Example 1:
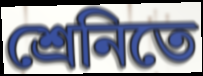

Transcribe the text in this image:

শ্রেনিতে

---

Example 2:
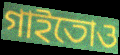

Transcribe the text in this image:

গাইতোও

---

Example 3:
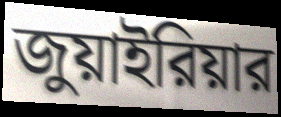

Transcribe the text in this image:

জুয়াইরিয়ার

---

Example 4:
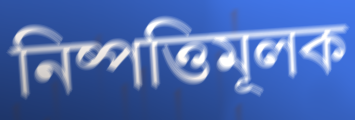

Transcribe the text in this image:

নিষ্পত্তিমূলক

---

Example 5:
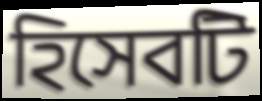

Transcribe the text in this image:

হিসেবটি